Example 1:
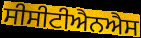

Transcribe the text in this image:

ਸੀਸੀਟੀਐਨਐਸ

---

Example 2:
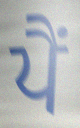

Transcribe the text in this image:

ਪੈਂ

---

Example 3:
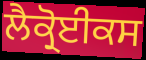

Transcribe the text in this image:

ਲੈਕ੍ਰੋਈਕਸ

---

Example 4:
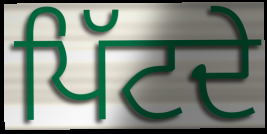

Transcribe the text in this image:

ਪਿੱਟਦੇ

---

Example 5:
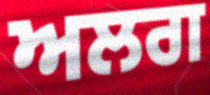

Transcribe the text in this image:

ਅਲਗ